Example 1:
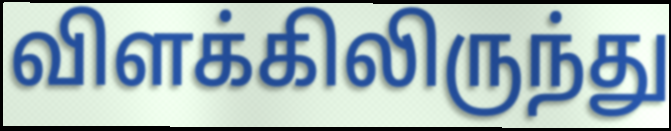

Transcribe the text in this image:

விளக்கிலிருந்து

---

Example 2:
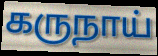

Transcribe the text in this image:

கருநாய்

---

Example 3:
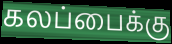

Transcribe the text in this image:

கலப்பைக்கு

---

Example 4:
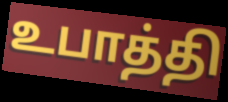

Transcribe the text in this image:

உபாத்தி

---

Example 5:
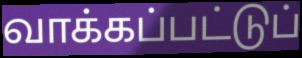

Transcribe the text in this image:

வாக்கப்பட்டுப்